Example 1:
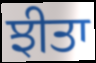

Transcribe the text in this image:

ਝੀਤਾ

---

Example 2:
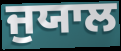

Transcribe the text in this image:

ਜੁਯਾਲ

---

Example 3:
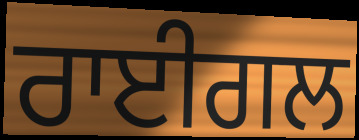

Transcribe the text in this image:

ਰਾਈਗਲ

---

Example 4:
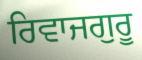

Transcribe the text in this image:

ਰਿਵਾਜਗੁਰੂ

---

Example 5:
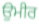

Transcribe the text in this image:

ਉਮੀਰ